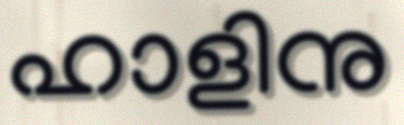
ഹാളിനു